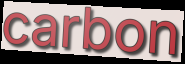
carbon